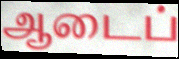
ஆடைப்